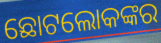
ଛୋଟଲୋକଙ୍କର